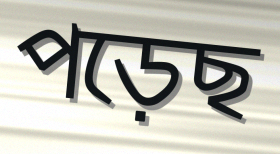
পড়েছ